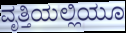
ವೃತ್ತಿಯಲ್ಲಿಯೂ